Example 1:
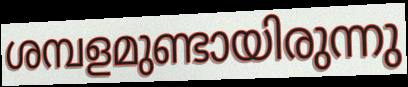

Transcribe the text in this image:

ശമ്പളമുണ്ടായിരുന്നു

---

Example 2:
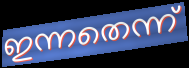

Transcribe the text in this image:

ഇന്നതെന്ന്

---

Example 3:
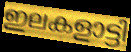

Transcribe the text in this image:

ഇലകളാട്ടി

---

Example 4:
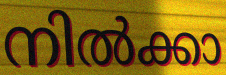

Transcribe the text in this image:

നിൽക്കാ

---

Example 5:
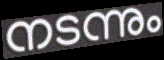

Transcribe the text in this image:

നടന്നും